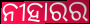
ନୀହାରର